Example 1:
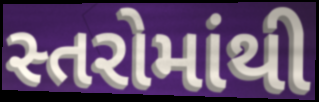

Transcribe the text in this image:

સ્તરોમાંથી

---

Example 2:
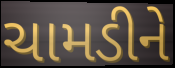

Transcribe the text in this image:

ચામડીને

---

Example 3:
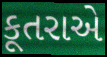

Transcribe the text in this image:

કૂતરાએ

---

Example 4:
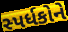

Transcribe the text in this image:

સ્પર્ધકોને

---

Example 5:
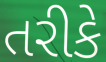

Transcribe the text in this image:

તરીકે